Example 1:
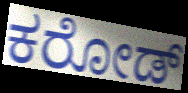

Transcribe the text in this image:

ಕರೋಡ್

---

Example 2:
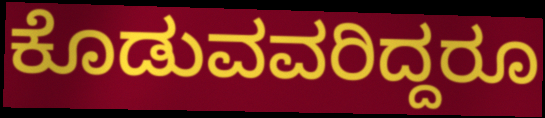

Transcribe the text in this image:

ಕೊಡುವವರಿದ್ದರೂ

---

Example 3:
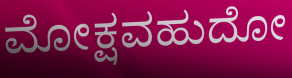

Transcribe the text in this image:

ಮೋಕ್ಷವಹುದೋ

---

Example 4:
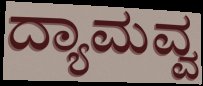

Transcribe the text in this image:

ದ್ಯಾಮವ್ವ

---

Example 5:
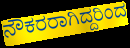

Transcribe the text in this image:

ನೌಕರರಾಗಿದ್ದರಿಂದ